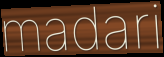
madari